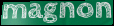
magnon